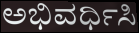
ಅಭಿವರ್ಧಿಸಿ